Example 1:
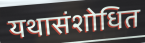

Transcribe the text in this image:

यथासंशोधित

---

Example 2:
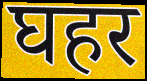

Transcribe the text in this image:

घहर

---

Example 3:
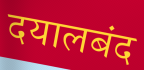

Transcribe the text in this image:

दयालबंद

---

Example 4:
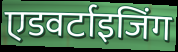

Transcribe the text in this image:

एडवर्टाइजिंग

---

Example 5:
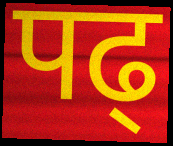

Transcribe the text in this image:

पढ्